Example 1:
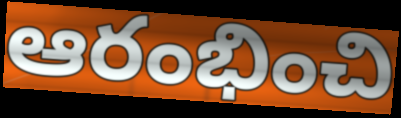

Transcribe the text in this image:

ఆరంభించి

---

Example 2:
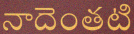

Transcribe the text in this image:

నాదెంతటి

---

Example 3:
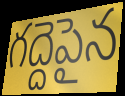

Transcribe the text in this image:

గద్దెపైన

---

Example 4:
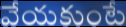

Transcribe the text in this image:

వేయకుంటే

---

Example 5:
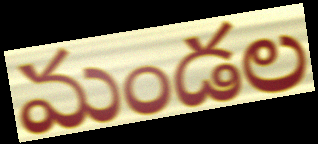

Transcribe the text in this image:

మండల